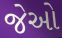
જેઓ